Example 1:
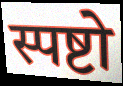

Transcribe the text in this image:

स्पष्टो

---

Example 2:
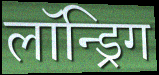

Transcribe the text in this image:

लॉन्ड्रिग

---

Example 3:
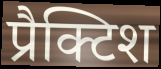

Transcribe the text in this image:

प्रैक्टिश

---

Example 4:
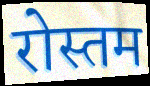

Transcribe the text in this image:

रोस्तम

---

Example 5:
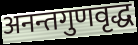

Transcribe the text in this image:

अनन्तगुणवृद्ध